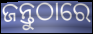
ଜନ୍ତୁଠାରେ